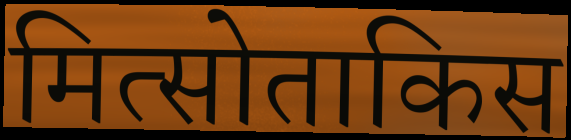
मित्सोताकिस